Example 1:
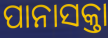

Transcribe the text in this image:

ପାନାସକ୍ତା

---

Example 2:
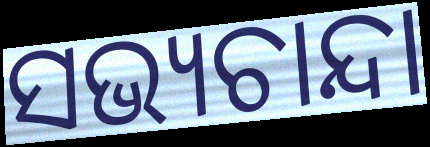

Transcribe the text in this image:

ସଭ୍ୟଚାନ୍ଦା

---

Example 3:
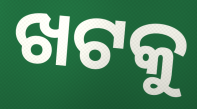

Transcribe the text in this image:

ଖଟକୁ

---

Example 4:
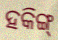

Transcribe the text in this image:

ହକିଙ୍ଗ୍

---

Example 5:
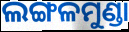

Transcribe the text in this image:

ଲଙ୍ଗଳମୁଣ୍ଡା